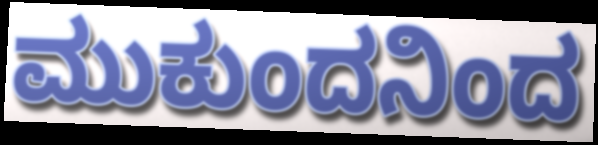
ಮುಕುಂದನಿಂದ